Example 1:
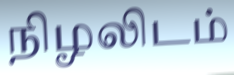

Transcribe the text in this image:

நிழலிடம்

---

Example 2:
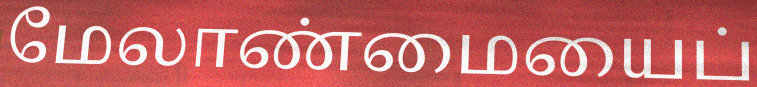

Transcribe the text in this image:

மேலாண்மையைப்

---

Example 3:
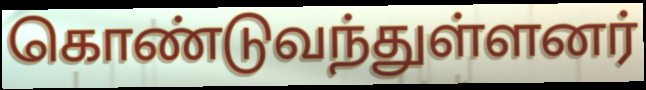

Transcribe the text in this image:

கொண்டுவந்துள்ளனர்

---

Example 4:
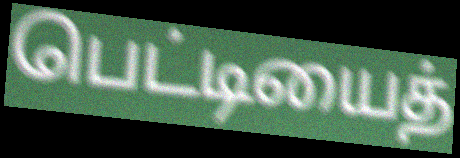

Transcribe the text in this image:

பெட்டியைத்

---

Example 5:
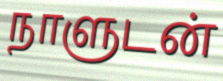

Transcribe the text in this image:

நாளுடன்